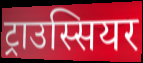
ट्राउस्सियर